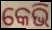
କେଭି